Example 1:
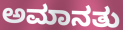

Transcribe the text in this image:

ಅಮಾನತು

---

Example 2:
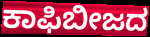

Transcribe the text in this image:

ಕಾಫಿಬೀಜದ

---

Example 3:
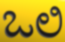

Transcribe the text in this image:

ಒಲಿ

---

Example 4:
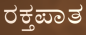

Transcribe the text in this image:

ರಕ್ತಪಾತ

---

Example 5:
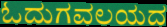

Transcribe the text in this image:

ಓದುಗವಲಯದ